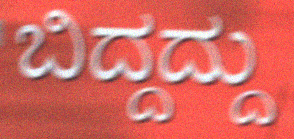
ಬಿದ್ದದ್ದು